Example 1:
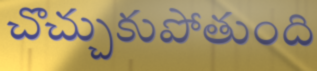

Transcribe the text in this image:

చొచ్చుకుపోతుంది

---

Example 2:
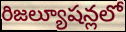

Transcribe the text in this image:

రిజల్యూషన్లలో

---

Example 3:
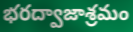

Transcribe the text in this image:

భరద్వాజాశ్రమం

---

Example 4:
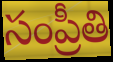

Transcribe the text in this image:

సంప్రీతి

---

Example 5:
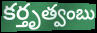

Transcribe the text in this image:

కర్తృత్వంబు